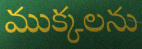
ముక్కలను